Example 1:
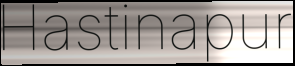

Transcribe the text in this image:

Hastinapur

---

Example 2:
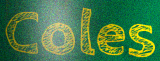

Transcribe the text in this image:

Coles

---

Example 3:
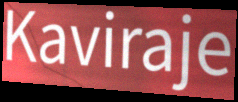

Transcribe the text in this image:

Kaviraje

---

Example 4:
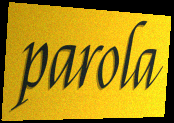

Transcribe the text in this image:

parola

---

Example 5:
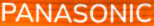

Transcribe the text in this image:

PANASONIC